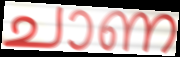
ചാണ